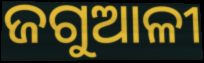
ଜଗୁଆଳୀ